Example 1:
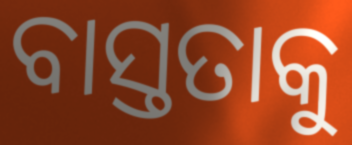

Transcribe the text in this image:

ବାସ୍ତତାକୁ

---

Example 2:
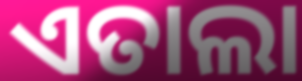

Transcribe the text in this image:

ଏତାଲା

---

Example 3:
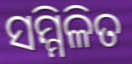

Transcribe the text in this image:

ସମ୍ମିଳିତ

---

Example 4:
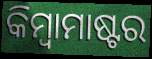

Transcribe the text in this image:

କିମ୍ୱାମାଷ୍ଟର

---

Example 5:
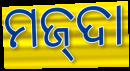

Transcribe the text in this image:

ମଜ୍‌ଦା